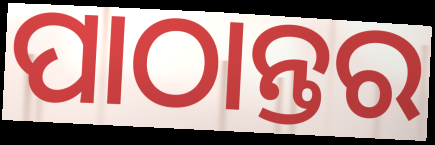
ପାଠାନ୍ତର